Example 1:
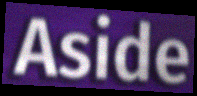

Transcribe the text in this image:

Aside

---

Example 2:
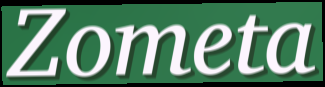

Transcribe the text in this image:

Zometa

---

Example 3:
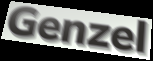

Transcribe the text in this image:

Genzel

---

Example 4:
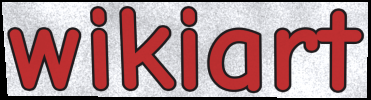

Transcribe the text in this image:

wikiart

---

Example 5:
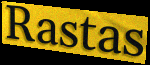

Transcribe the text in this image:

Rastas